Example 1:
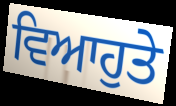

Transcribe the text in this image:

ਵਿਆਹੁਤੇ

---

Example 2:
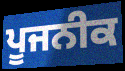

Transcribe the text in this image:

ਪੂਜਨੀਕ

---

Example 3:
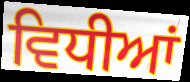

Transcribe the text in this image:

ਵਿਧੀਆਂ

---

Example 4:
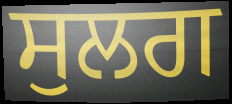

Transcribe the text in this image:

ਸੁਲਗ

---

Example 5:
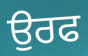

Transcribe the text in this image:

ਉਰਫ